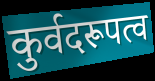
कुर्वदरूपत्व